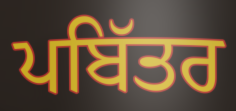
ਪਬਿੱਤਰ